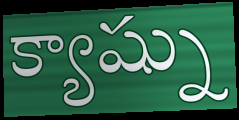
క్యాష్ను